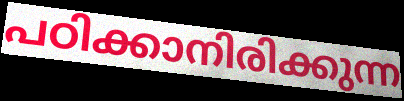
പഠിക്കാനിരിക്കുന്ന